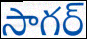
సాగర్